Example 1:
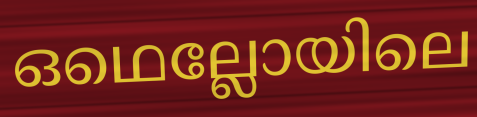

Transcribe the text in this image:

ഒഥെല്ലോയിലെ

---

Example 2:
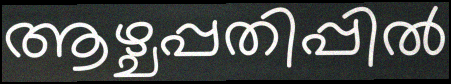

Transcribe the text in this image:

ആഴ്ചപ്പതിപ്പിൽ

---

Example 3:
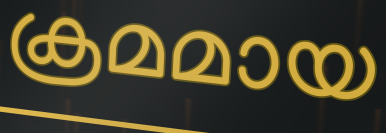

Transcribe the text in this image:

ക്രമമായ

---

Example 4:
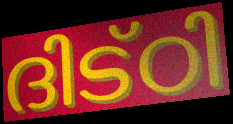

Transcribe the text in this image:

ദിട്ഠി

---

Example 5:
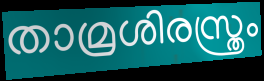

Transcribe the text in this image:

താമ്രശിരസ്ത്രം